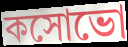
কসোভো